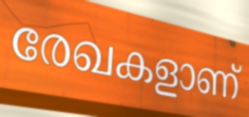
രേഖകളാണ്